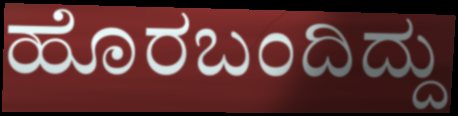
ಹೊರಬಂದಿದ್ದು